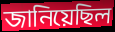
জানিয়েছিল